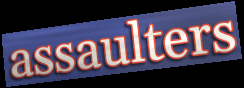
assaulters